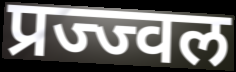
प्रज्ज्वल